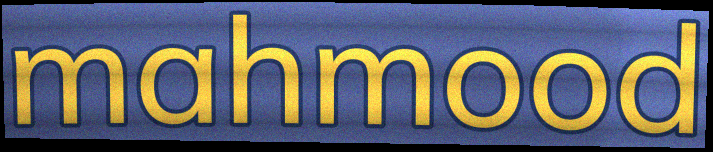
mahmood